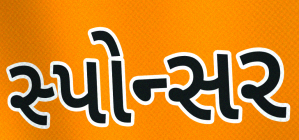
સ્પોન્સર